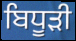
ਬਿਧੂੜੀ